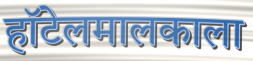
हॉटेलमालकाला